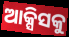
ଆକ୍ସିସକୁ